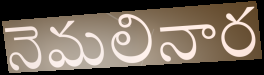
నెమలినార